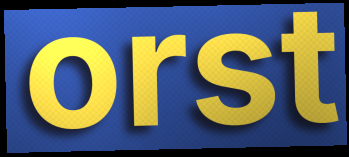
orst